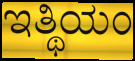
ಇತ್ಥಿಯಂ